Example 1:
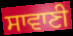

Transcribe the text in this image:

ਸਾਵਾਣੀ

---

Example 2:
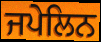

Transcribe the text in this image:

ਜਪੇਲਿਨ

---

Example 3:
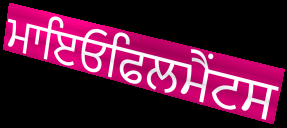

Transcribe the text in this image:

ਮਾਇਓਫਿਲਮੈਂਟਸ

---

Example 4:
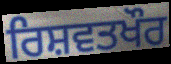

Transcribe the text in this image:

ਰਿਸ਼ਵਤਖੌਰ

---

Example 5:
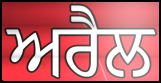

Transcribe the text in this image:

ਅਰੈਲ